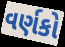
વર્ણકો